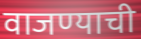
वाजण्याची